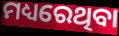
ମଧ୍ୟରେଥିବା